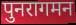
पुनरागमन